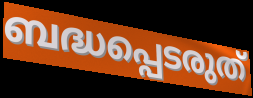
ബദ്ധപ്പെടരുത്